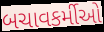
બચાવકર્મીઓ